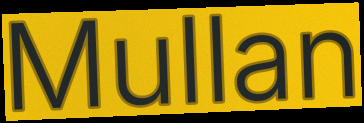
Mullan